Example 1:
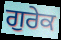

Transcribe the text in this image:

ਗੁਰੇਕ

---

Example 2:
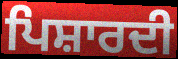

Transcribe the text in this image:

ਪਿਸ਼ਾਰਦੀ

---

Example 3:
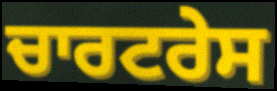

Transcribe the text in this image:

ਚਾਰਟਰੇਸ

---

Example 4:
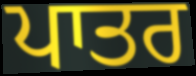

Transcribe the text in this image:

ਪਾਤਰ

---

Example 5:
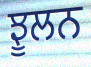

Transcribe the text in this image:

ਝੂਲਨ